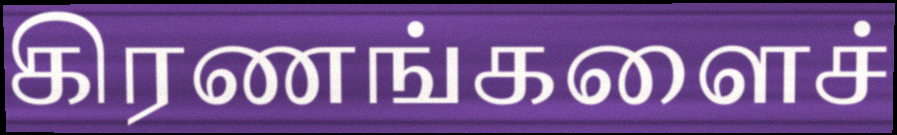
கிரணங்களைச்